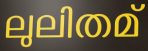
ലുലിതമ്